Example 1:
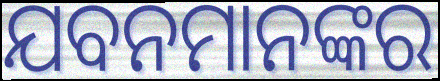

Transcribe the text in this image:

ଯବନମାନଙ୍କର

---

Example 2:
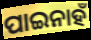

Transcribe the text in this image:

ପାଇନାହଁ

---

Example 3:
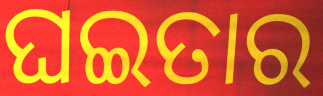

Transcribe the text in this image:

ଘଇତାର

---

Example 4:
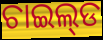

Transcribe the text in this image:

ଚାଇଲ୍‌ଡ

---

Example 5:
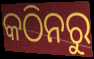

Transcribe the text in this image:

କଠିନରୁ